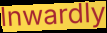
Inwardly